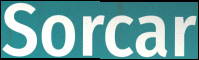
Sorcar